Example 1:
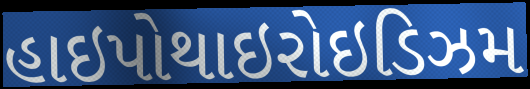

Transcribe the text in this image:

હાઇપોથાઇરોઇડિઝમ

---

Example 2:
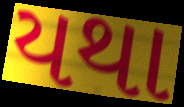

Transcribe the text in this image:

યથા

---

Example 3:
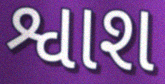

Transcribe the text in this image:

શ્વાશ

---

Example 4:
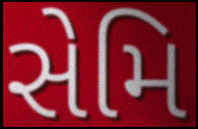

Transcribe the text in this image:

સેમિ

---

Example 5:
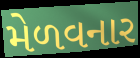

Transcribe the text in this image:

મેળવનાર